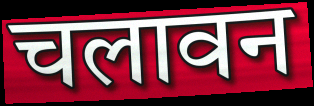
चलावन